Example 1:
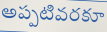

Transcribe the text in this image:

అప్పటివరకూ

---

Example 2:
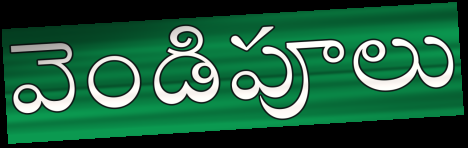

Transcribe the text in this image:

వెండిపూలు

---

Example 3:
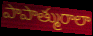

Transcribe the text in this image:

పాపాత్మురాలా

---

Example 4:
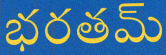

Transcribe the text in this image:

భరతమ్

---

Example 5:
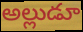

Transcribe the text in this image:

అల్లుడూ